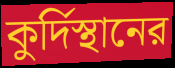
কুর্দিস্থানের